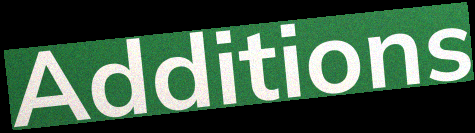
Additions